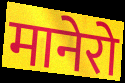
मानेरो